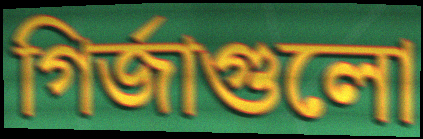
গির্জাগুলো